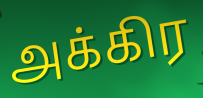
அக்கிர